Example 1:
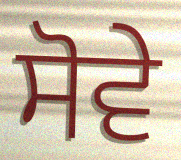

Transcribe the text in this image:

ਸੋਵੇ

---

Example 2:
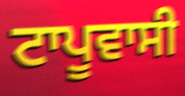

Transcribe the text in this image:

ਟਾਪੂਵਾਸੀ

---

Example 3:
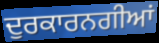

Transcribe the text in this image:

ਦੁਰਕਾਰਨਗੀਆਂ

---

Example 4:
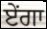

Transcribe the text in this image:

ਏਂਗਾ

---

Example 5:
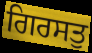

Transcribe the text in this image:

ਗਿਰਸਤੁ